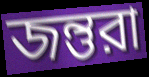
জন্তুরা